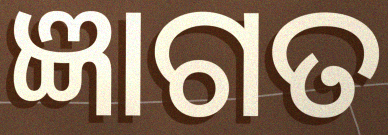
ଜ୍ଞାଗତ